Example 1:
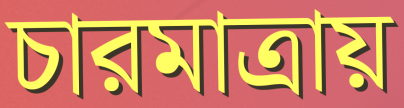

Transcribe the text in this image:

চারমাত্রায়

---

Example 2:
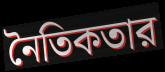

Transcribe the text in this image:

নৈতিকতার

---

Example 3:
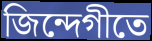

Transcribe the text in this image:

জিন্দেগীতে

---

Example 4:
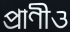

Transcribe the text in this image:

প্রাণীও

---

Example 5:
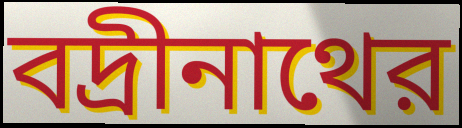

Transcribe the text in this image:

বদ্রীনাথের